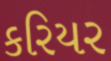
કરિયર